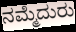
ನಮ್ಮೆದುರು